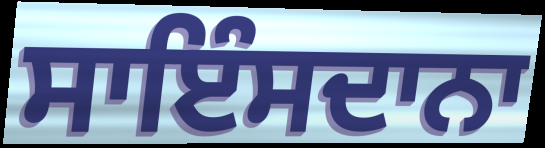
ਸਾਇੰਸਦਾਨਾ